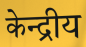
केन्‍द्रीय